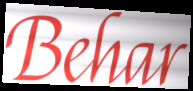
Behar